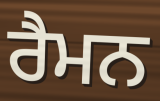
ਰੈਮਨ